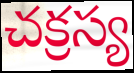
చక్రస్య